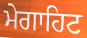
ਮੇਗਾਹਿਟ